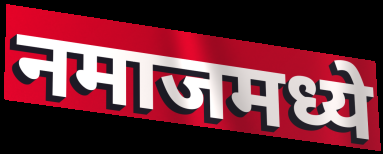
नमाजमध्ये